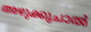
അഴുക്കുചാൽ